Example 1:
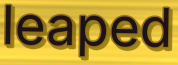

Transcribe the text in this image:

leaped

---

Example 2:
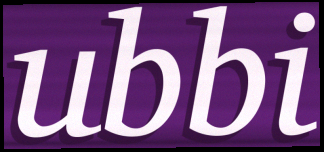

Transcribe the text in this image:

ubbi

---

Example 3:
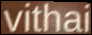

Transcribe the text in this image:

vithai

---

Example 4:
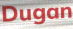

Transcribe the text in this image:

Dugan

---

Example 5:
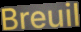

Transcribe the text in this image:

Breuil